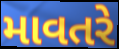
માવતરે